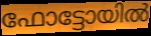
ഫോട്ടോയിൽ